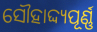
ସୌହାଦ୍ଦ୍ୟପୂର୍ଣ୍ଣ